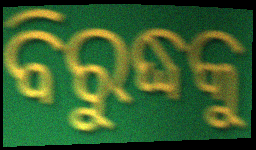
ବିରୁଦ୍ଧକୁ